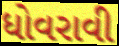
ધોવરાવી